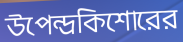
উপেন্দ্রকিশোরের